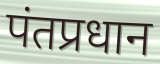
पंतप्रधान